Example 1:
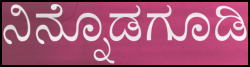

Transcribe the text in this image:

ನಿನ್ನೊಡಗೂಡಿ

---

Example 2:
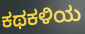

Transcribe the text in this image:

ಕಥಕಳಿಯ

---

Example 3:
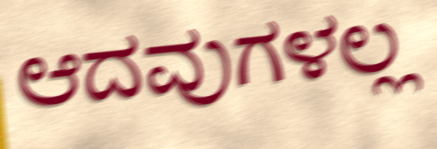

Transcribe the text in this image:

ಆದವುಗಳಲ್ಲ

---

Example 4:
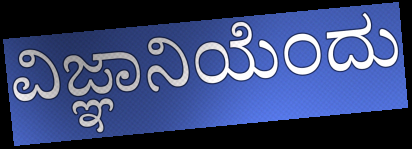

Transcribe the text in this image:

ವಿಜ್ಞಾನಿಯೆಂದು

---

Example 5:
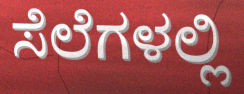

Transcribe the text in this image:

ಸೆಲೆಗಳಲ್ಲಿ